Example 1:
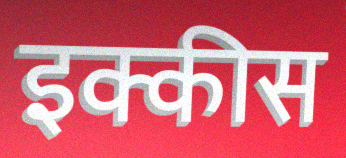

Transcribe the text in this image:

इक्कीस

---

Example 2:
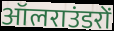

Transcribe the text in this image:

ऑलराउंडरों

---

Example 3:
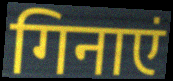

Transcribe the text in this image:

गिनाएं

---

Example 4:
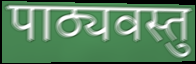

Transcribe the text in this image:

पाठ्यवस्तु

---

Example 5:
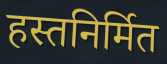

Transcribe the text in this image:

हस्तनिर्मित